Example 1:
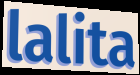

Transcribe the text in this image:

lalita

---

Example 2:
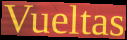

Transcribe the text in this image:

Vueltas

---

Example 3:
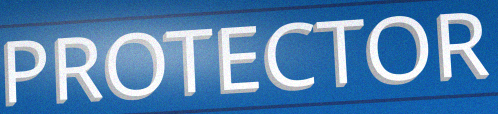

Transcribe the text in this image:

PROTECTOR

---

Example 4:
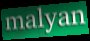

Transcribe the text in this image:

malyan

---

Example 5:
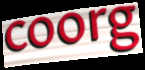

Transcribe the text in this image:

coorg